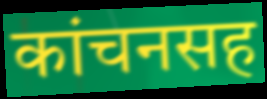
कांचनसह